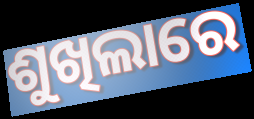
ଶୁଖିଲାରେ